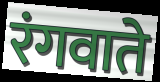
रंगवाते